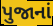
પુજાનાં